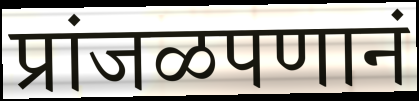
प्रांजळपणानं